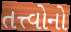
તત્ત્વોનો